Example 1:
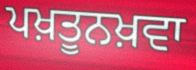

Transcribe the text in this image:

ਪਖ਼ਤੂਨਖ਼ਵਾ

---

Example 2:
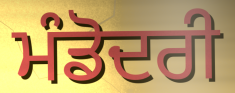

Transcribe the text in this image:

ਮੰਡੋਦਰੀ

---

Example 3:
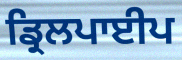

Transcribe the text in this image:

ਡ੍ਰਿਲਪਾਈਪ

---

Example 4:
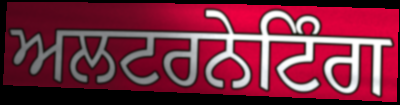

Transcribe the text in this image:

ਅਲਟਰਨੇਟਿੰਗ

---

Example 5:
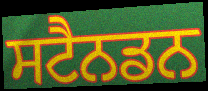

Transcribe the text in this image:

ਸਟੈਨਡਨ